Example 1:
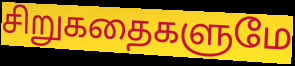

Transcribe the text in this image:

சிறுகதைகளுமே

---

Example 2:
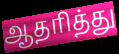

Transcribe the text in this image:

ஆதரித்து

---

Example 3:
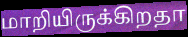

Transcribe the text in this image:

மாறியிருக்கிறதா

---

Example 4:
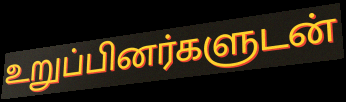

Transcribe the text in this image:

உறுப்பினர்களுடன்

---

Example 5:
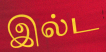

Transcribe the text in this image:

இல்ட